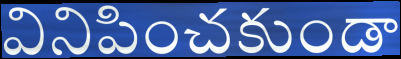
వినిపించకుండా